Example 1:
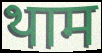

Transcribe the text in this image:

थाम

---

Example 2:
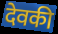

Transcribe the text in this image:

देवकी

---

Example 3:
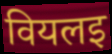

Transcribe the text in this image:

वियलइ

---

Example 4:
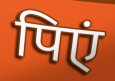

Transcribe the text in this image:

पिएं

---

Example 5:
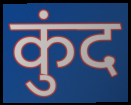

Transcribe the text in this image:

कुंद